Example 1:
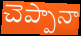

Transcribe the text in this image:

చెప్పానా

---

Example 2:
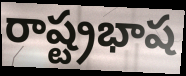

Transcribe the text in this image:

రాష్ట్రభాష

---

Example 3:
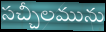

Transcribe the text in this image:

సచ్చీలమును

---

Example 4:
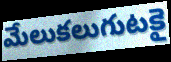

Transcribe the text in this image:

మేలుకలుగుటకై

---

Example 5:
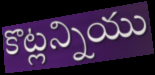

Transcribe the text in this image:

కొట్లన్నియు